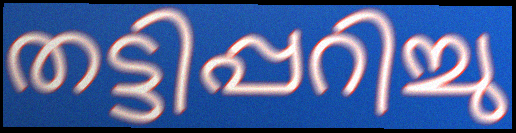
തട്ടിപ്പറിച്ചു